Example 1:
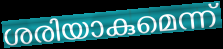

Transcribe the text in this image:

ശരിയാകുമെന്ന്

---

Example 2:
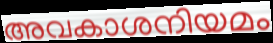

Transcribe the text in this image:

അവകാശനിയമം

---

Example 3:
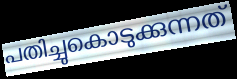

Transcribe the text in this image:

പതിച്ചുകൊടുക്കുന്നത്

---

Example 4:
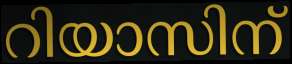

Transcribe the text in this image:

റിയാസിന്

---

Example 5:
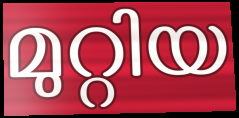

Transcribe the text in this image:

മുറ്റിയ